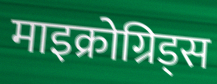
माइक्रोग्रिड्स